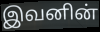
இவனின்